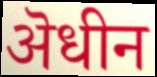
ऄधीन